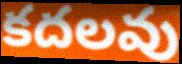
కదలవు